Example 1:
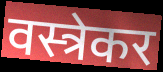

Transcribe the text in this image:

वस्त्रेकर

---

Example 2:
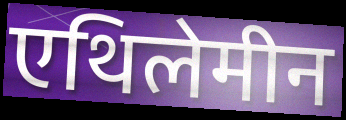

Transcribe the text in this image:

एथिलेमीन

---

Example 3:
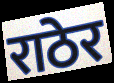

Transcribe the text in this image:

राठेर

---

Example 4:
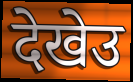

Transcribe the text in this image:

देखेउ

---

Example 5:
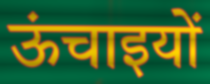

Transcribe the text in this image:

ऊंचाइयों